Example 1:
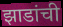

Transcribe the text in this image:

झाडांची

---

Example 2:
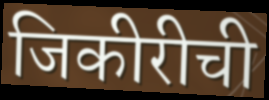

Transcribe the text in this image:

जिकीरीची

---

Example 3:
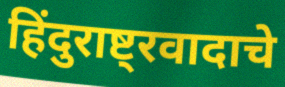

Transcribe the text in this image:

हिंदुराष्ट्रवादाचे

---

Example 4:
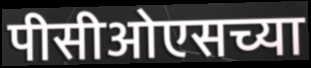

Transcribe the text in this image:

पीसीओएसच्या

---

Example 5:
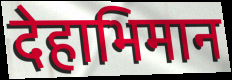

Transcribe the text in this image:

देहाभिमान